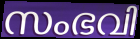
സംഭവി